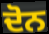
ਦੋਨ